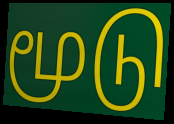
மூடு